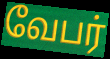
வேபர்